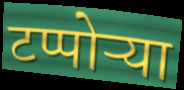
टप्पोऱ्या